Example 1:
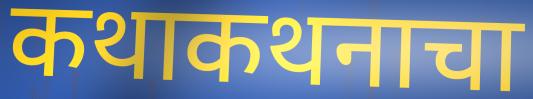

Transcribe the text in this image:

कथाकथनाचा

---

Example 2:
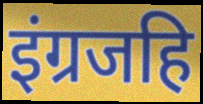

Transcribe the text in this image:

इंग्रजहि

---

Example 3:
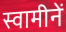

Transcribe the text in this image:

स्वामीनें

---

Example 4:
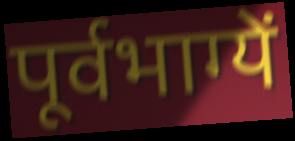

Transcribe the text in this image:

पूर्वभाग्यें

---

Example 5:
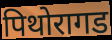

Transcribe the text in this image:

पिथोरागड